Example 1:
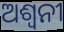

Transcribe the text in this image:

ଅଶ୍ଵନୀ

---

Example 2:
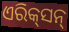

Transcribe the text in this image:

ଏରିକ୍‌ସନ୍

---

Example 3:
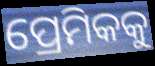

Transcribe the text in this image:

ପ୍ରେମିକକୁ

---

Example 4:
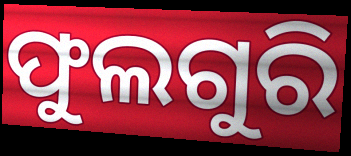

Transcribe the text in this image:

ଫୁଲଗୁରି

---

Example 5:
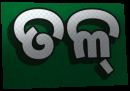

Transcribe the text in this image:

ତଳ୍